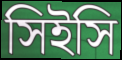
সিইসি